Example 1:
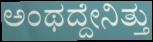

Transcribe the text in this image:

ಅಂಥದ್ದೇನಿತ್ತು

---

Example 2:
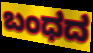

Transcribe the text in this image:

ಬಂಧದ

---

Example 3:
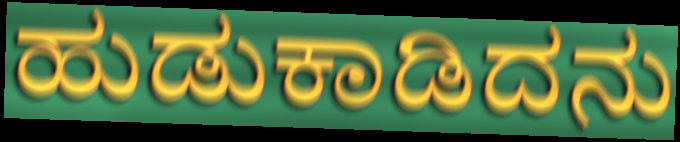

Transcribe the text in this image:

ಹುಡುಕಾಡಿದನು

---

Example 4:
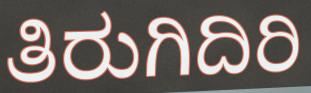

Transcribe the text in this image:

ತಿರುಗಿದಿರಿ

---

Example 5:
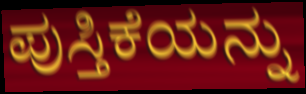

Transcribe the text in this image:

ಪುಸ್ತಿಕೆಯನ್ನು